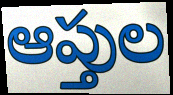
ఆప్తుల